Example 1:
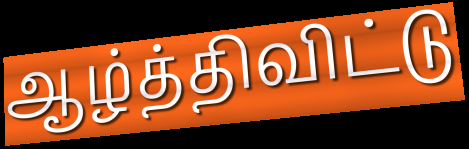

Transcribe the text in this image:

ஆழ்த்திவிட்டு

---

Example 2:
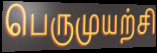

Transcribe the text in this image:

பெருமுயற்சி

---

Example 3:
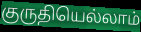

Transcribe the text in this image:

குருதியெல்லாம்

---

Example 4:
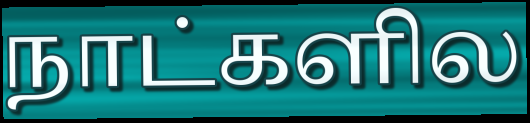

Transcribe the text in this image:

நாட்களில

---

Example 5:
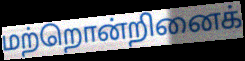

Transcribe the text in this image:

மற்றொன்றினைக்